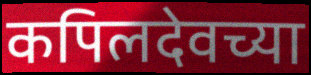
कपिलदेवच्या